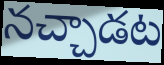
నచ్చాడట